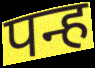
पन्ह